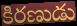
కిరణుడు